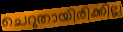
ചെറുതായിരിക്കില്ല